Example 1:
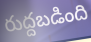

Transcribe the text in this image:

రుద్దబడింది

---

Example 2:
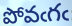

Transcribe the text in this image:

పోవఁగఁ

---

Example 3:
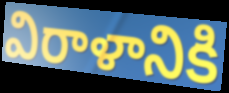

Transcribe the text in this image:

విరాళానికి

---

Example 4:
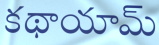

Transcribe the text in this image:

కథాయామ్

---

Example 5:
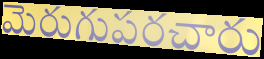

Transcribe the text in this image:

మెరుగుపరచారు